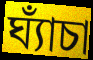
ঘ্যাঁচা